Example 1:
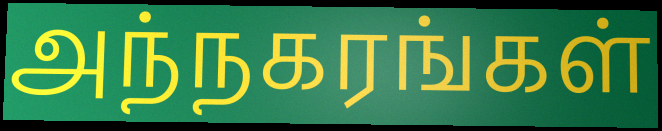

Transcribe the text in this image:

அந்நகரங்கள்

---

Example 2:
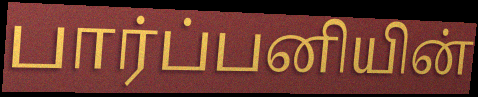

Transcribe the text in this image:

பார்ப்பனியின்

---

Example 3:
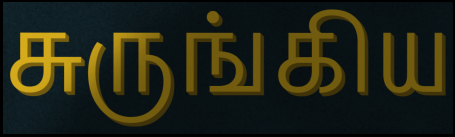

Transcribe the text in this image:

சுருங்கிய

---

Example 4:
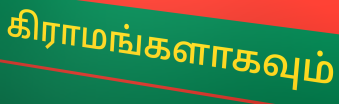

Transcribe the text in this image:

கிராமங்களாகவும்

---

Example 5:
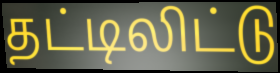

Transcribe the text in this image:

தட்டிலிட்டு